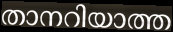
താനറിയാത്ത